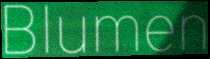
Blumen